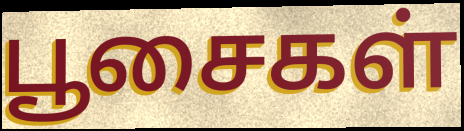
பூசைகள்